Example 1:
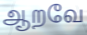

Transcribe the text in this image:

ஆறவே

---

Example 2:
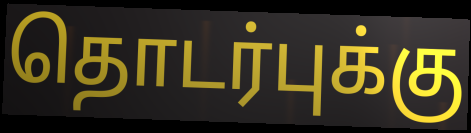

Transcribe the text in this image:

தொடர்புக்கு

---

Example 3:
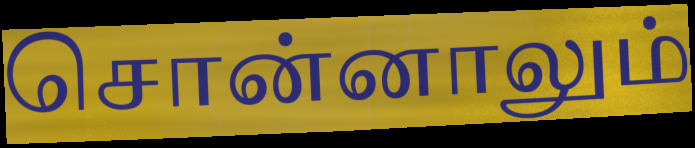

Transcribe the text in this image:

சொன்னாலும்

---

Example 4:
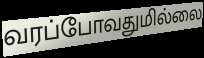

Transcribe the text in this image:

வரப்போவதுமில்லை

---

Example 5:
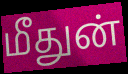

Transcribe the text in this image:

மீதுன்